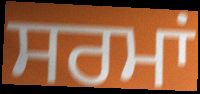
ਸਰਮਾਂ